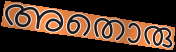
അതൊരു